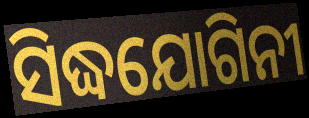
ସିଦ୍ଧଯୋଗିନୀ